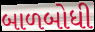
બાળબોધી